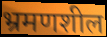
भ्रमणशील